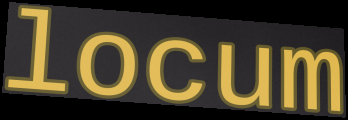
locum